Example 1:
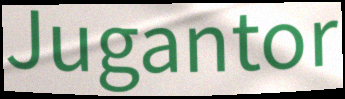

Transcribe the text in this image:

Jugantor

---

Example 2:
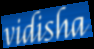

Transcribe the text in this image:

vidisha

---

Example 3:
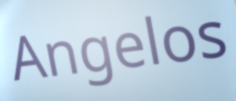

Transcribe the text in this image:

Angelos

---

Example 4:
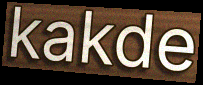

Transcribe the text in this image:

kakde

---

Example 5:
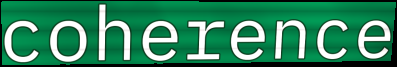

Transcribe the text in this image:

coherence